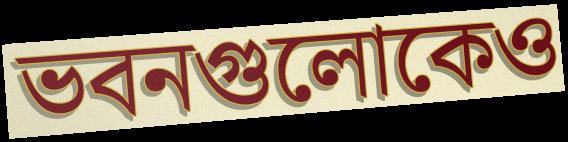
ভবনগুলোকেও